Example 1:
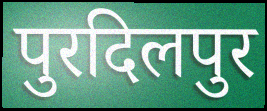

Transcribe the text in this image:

पुरदिलपुर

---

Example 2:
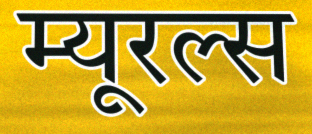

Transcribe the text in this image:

म्यूरल्स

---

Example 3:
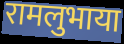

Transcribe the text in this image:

रामलुभाया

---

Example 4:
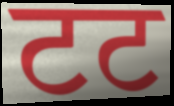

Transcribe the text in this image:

टट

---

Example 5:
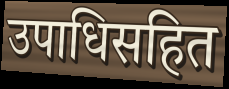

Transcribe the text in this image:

उपाधिसहित